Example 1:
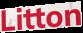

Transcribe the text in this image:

Litton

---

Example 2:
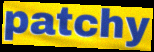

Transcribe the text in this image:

patchy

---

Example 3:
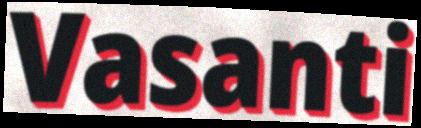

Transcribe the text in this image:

Vasanti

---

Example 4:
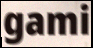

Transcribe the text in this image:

gami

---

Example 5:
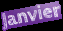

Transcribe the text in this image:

Janvier